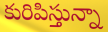
కురిపిస్తున్నా